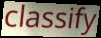
classify